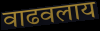
वाढवलाय